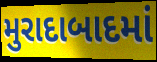
મુરાદાબાદમાં